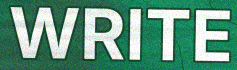
WRITE